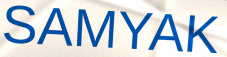
SAMYAK